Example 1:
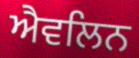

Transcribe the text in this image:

ਐਵਲਿਨ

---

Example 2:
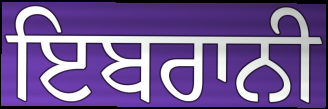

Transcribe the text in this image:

ਇਬਰਾਨੀ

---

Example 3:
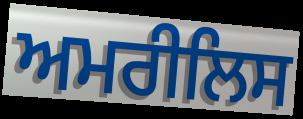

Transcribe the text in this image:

ਅਮਰੀਲਿਸ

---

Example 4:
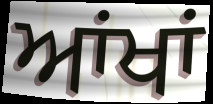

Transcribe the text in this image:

ਆਂਖਾਂ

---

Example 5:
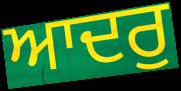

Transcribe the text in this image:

ਆਦਰੁ